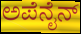
ಅಪೆನೈನ್